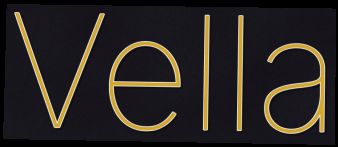
Vella